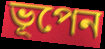
ভূপেন